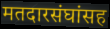
मतदारसंघांसह